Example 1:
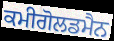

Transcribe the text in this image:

ਕਮੀਗੋਲਡਮੈਨ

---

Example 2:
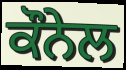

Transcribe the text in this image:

ਕੌਨੇਲ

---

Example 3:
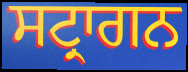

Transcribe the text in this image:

ਸਟ੍ਰਾਗਨ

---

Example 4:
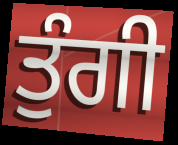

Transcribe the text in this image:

ਤੁੰਗੀ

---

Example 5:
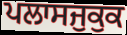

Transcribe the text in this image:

ਪਲਾਸਜੁਕੁਕ